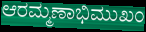
ಆರಮ್ಮಣಾಭಿಮುಖಂ